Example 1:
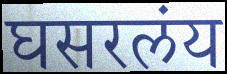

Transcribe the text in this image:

घसरलंय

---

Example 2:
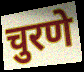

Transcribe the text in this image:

चुरणे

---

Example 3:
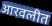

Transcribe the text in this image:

आरवलीत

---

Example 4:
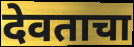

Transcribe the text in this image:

देवताचा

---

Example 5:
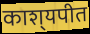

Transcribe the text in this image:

काश्यपीत